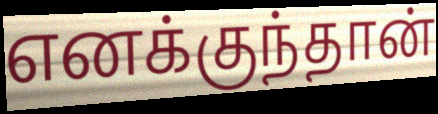
எனக்குந்தான்